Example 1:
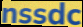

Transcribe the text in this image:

nssdc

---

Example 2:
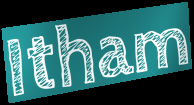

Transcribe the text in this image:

Itham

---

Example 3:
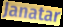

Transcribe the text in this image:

Janatar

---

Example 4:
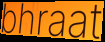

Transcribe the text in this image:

bhraat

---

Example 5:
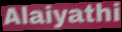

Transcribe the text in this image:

Alaiyathi